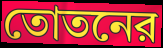
তোতনের